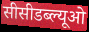
सीसीडब्ल्यूओ